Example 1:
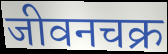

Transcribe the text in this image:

जीवनचक्र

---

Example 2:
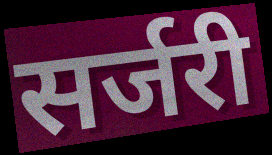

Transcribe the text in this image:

सर्जरी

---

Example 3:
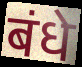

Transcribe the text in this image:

बंधे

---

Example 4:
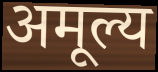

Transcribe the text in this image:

अमूल्‍य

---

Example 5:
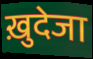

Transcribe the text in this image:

ख़ुदेजा